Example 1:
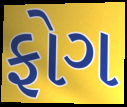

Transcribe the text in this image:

ફોગ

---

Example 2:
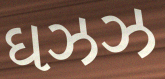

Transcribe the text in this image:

ઘઝઝ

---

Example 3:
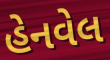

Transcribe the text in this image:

હેનવેલ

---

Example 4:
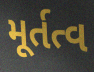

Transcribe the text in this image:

મૂર્તત્વ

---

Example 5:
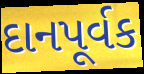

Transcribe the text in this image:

દાનપૂર્વક